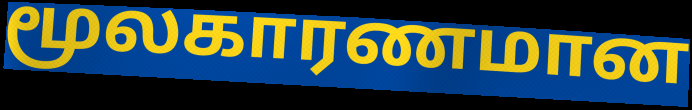
மூலகாரணமான